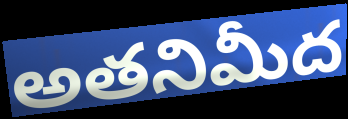
అతనిమీద